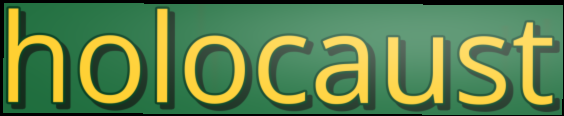
holocaust